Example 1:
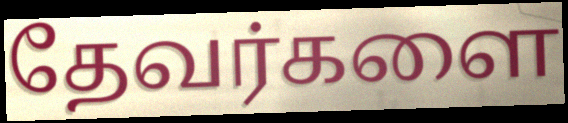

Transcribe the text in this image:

தேவர்களை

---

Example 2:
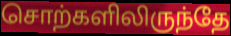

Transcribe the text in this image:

சொற்களிலிருந்தே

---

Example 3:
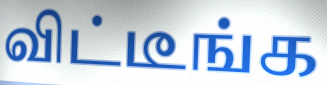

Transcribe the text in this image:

விட்டீங்க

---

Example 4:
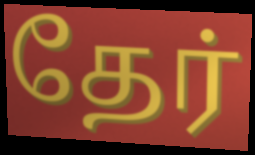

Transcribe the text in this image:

தேர்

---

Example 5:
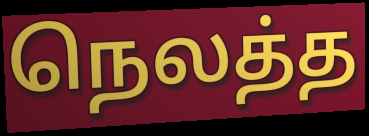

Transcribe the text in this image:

நெலத்த